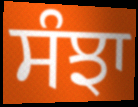
ਸੰਝਾ